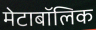
मेटाबॉलिक